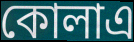
কোলাএ